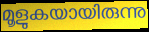
മൂളുകയായിരുന്നു